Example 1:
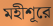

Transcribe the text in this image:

মহীশূরে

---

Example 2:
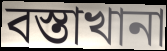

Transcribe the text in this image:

বস্তাখানা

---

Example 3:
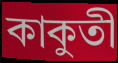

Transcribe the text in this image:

কাকুতী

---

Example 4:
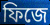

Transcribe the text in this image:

ফিজে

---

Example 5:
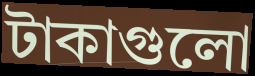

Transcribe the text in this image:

টাকাগুলো